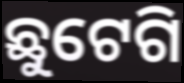
ଛୁଟେଗି